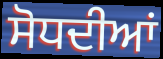
ਸੋਧਦੀਆਂ